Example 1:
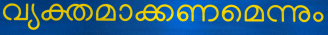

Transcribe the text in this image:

വ്യക്തമാക്കണമെന്നും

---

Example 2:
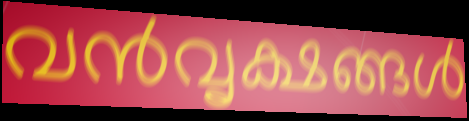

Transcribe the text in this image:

വൻവൃക്ഷങ്ങൾ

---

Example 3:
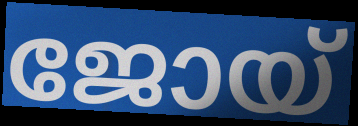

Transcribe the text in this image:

ജോയ്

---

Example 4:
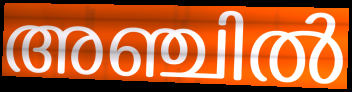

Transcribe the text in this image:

അഞ്ചിൽ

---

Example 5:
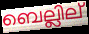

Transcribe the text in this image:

ബെല്ലില്